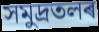
সমুদ্ৰতলৰ